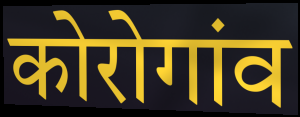
कोरोगांव